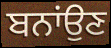
ਬਨਾਂਉਣ